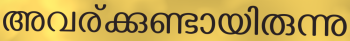
അവര്ക്കുണ്ടായിരുന്നു